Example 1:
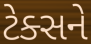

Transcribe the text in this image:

ટેક્સને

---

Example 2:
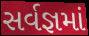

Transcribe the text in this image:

સર્વજ્ઞમાં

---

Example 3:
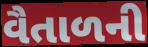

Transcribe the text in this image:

વૈતાળની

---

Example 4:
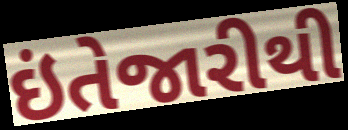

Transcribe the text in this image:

ઇંતેજારીથી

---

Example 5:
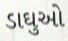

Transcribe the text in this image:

ડાઘુઓ